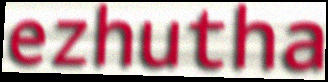
ezhutha